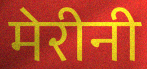
मेरीनी